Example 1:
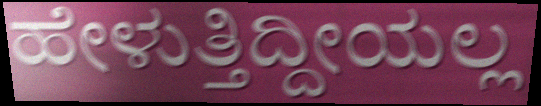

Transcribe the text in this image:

ಹೇಳುತ್ತಿದ್ದೀಯಲ್ಲ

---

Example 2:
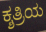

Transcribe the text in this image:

ಕ್ಶತ್ರಿಯ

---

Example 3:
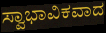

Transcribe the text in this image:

ಸ್ವಾಭಾವಿಕವಾದ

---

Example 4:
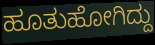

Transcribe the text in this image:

ಹೂತುಹೋಗಿದ್ದು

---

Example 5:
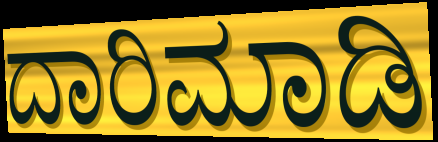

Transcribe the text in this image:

ದಾರಿಮಾಡಿ